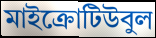
মাইক্রোটিউবুল